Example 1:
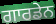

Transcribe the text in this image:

ਗਾਰਡੇਨ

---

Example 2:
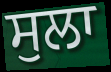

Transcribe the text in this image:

ਸੁਲਾ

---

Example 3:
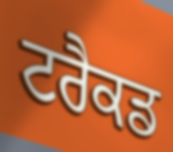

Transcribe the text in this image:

ਟਰੈਕਡ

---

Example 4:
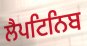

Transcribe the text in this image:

ਲੈਪਟਿਨਿਬ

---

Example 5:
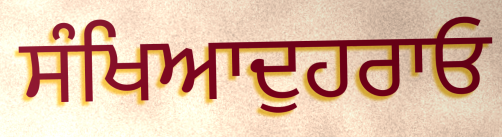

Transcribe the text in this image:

ਸੰਖਿਆਦੁਹਰਾਓ